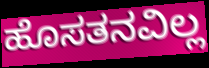
ಹೊಸತನವಿಲ್ಲ